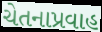
ચેતનાપ્રવાહ